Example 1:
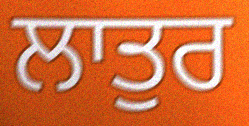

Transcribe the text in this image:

ਲਾਤੁਰ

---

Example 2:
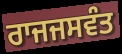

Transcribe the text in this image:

ਰਾਜਜਸਵੰਤ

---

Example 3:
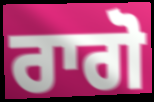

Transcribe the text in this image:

ਰਾਗੋ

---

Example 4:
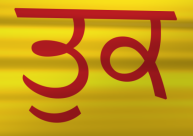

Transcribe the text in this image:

ਤੁਕ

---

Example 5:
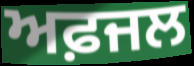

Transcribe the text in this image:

ਅਫ਼ਜਲ